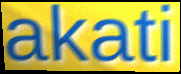
akati